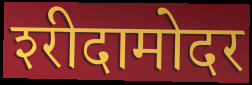
श्रीदामोदर